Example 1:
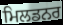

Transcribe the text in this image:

ਮਿਲਡਨਰ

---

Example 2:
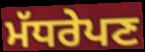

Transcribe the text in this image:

ਮੱਧਰੇਪਣ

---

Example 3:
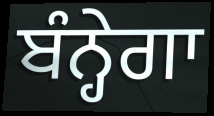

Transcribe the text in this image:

ਬੰਨ੍ਹੇਗਾ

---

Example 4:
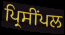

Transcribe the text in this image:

ਪ੍ਰਿਸੀਂਪਲ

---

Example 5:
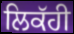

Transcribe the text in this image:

ਲਿਕੱਹੀ